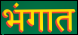
भंगात